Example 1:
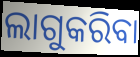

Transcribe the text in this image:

ଲାଗୁକରିବା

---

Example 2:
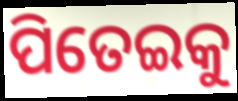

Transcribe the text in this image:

ପିତେଇକୁ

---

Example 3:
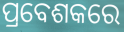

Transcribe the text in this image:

ପ୍ରବେଶକରେ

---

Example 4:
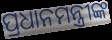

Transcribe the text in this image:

ପ୍ରଧାନମନ୍ତ୍ରୀଙ୍କ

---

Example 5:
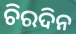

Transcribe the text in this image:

ଚିରଦିନ